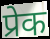
प्रेक